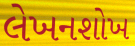
લેખનશોખ